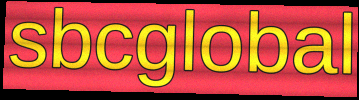
sbcglobal